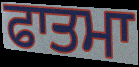
ਫਾਤਮਾ